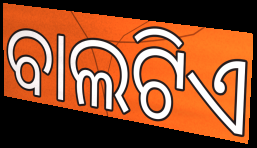
ବାଲଟିଏ